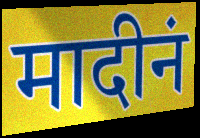
मादीनं